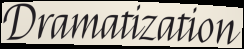
Dramatization